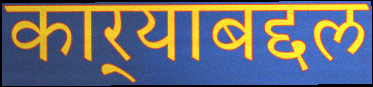
कार्याबद्दल